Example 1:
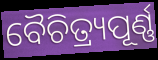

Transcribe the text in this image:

ବୈଚିତ୍ର୍ୟପୂର୍ଣ୍ଣ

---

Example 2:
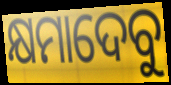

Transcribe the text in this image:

କ୍ଷମାଦେବୁ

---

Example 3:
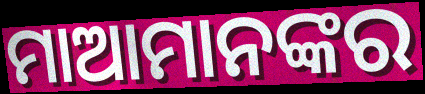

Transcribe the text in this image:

ମାଆମାନଙ୍କର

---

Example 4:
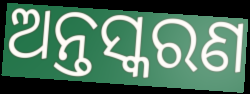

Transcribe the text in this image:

ଅନ୍ତସ୍କରଣ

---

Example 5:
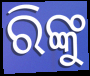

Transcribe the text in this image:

ରିଙ୍କୁ